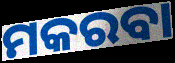
ମକରବା